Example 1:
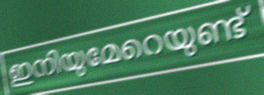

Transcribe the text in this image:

ഇനിയുമേറെയുണ്ട്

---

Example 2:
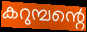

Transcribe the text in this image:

കറുമ്പന്റെ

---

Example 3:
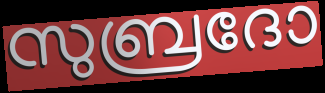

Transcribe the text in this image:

സുബ്രദോ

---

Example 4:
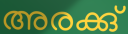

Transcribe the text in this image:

അരക്കു്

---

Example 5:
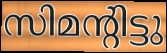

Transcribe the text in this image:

സിമന്റിട്ടു